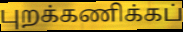
புறக்கணிக்கப்